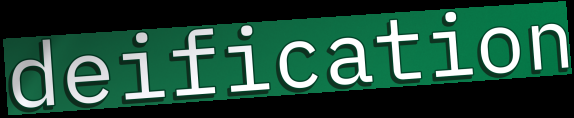
deification